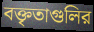
বক্তৃতাগুলির